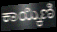
ಕಾಯ್ಕಿಣಿ